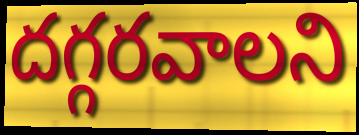
దగ్గరవాలని